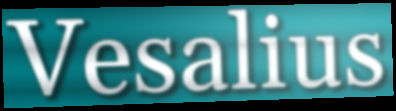
Vesalius